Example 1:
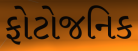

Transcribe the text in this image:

ફોટોજનિક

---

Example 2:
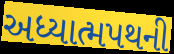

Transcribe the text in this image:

અધ્યાત્મપથની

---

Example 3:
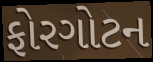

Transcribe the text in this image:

ફોરગોટન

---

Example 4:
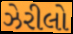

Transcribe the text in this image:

ઝેરીલો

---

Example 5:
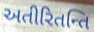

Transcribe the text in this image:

અતીરિતન્તિ